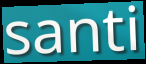
santi